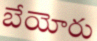
బేయోరు